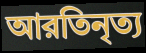
আরতিনৃত্য